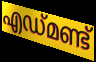
എഡ്മണ്ട്